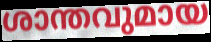
ശാന്തവുമായ